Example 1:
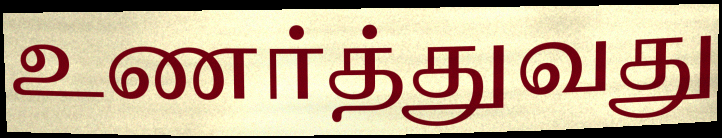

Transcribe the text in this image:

உணர்த்துவது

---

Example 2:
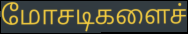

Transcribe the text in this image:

மோசடிகளைச்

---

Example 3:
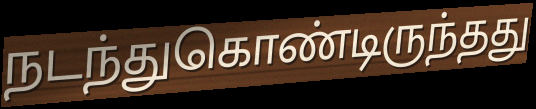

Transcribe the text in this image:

நடந்துகொண்டிருந்தது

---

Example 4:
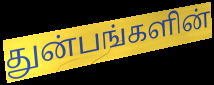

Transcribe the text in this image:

துன்பங்களின்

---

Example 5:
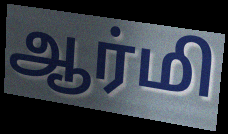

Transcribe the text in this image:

ஆர்மி